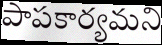
పాపకార్యమని